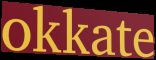
okkate